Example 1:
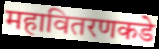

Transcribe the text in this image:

महावितरणकडे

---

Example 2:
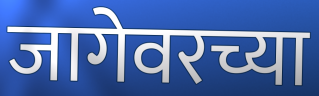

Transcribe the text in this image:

जागेवरच्या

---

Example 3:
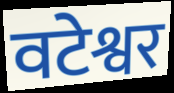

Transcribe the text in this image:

वटेश्वर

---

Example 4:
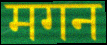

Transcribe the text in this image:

मगन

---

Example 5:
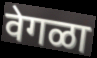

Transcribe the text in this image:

वेगळा